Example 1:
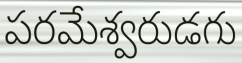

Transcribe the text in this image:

పరమేశ్వరుడగు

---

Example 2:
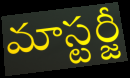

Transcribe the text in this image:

మాస్టర్జీ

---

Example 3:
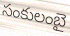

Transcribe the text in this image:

సంకులంబై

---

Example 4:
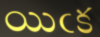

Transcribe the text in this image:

యిఁక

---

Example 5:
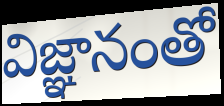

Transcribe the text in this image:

విజ్ఞానంతో